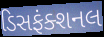
ડિસફંક્શનલ